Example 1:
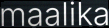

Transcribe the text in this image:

maalika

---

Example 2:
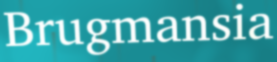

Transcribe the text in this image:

Brugmansia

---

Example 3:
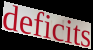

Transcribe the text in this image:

deficits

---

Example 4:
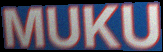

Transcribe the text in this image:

MUKU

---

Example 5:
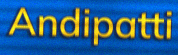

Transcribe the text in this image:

Andipatti